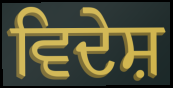
ਵਿਦੇਸ਼